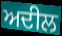
ਅਦੀਲ